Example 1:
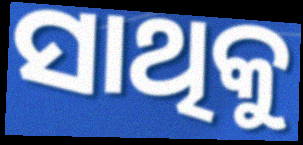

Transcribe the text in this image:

ସାଥିକୁ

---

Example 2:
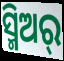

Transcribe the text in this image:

ସ୍ମିଅର୍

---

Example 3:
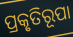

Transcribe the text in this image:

ପ୍ରକୃତିରୂପା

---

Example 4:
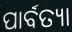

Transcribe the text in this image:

ପାର୍ବତ୍ୟା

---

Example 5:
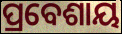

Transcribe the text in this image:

ପ୍ରବେଶାୟ